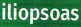
iliopsoas